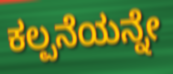
ಕಲ್ಪನೆಯನ್ನೇ